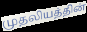
முதலியத்தின்